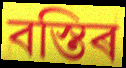
বস্তিৰ